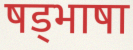
षड्भाषा